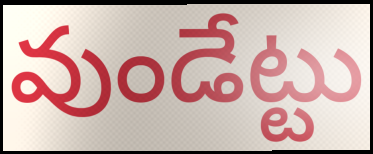
వుండేట్టు